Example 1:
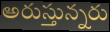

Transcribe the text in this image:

అరుస్తున్నరు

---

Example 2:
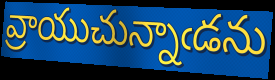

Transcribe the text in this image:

వ్రాయుచున్నాఁడను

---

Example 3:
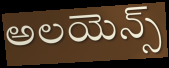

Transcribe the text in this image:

అలయెన్స్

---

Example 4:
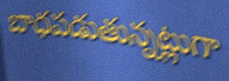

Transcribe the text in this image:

బాధపడుతున్నట్లుగా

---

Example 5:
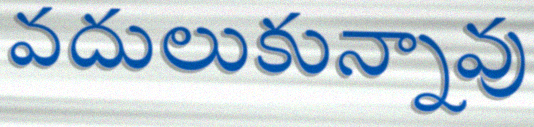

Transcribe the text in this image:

వదులుకున్నావు